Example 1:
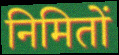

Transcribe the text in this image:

निमितों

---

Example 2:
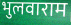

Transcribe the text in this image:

भुलवाराम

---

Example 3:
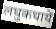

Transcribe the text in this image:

लघुकथायें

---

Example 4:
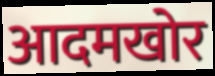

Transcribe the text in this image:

आदमखोर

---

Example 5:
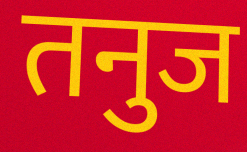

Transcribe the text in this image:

तनुज